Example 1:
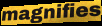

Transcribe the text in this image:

magnifies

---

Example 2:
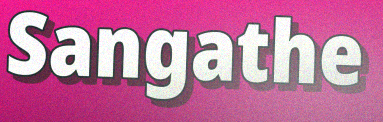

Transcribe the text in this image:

Sangathe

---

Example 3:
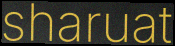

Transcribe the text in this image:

sharuat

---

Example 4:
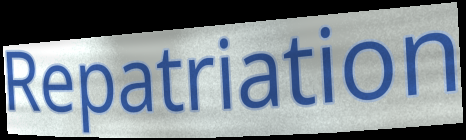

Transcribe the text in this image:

Repatriation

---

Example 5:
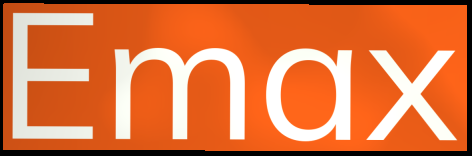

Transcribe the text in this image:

Emax